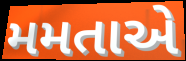
મમતાએ